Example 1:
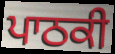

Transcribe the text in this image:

ਪਾਠਕੀ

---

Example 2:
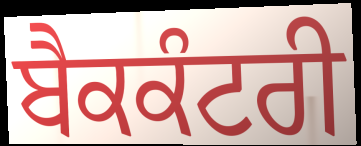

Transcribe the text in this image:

ਬੈਕਕੰਟਰੀ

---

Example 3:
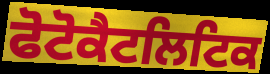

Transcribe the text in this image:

ਫੋਟੋਕੈਟਲਿਟਿਕ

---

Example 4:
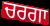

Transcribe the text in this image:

ਚਰਗਾ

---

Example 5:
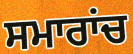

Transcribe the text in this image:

ਸਮਾਰਾਂਚ